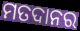
ମତଦାନର